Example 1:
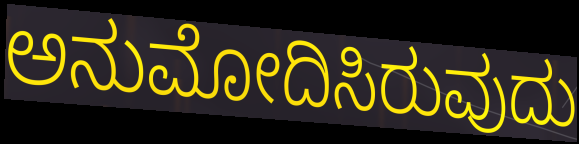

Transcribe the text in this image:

ಅನುಮೋದಿಸಿರುವುದು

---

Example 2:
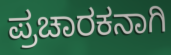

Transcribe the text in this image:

ಪ್ರಚಾರಕನಾಗಿ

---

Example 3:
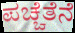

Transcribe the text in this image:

ಪಚ್ಚೆತೆನೆ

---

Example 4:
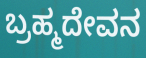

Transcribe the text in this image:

ಬ್ರಹ್ಮದೇವನ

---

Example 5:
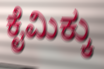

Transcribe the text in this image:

ಕೈಮಿಕ್ಕು